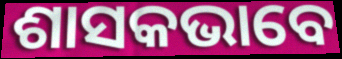
ଶାସକଭାବେ